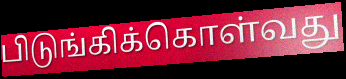
பிடுங்கிக்கொள்வது